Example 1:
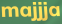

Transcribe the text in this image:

majjja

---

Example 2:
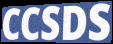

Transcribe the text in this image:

CCSDS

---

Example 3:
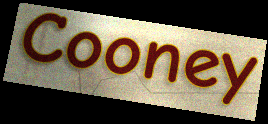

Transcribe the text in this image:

Cooney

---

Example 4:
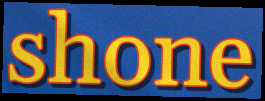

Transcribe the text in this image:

shone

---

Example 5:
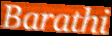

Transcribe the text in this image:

Barathi